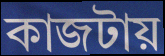
কাজটায়